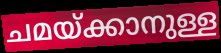
ചമയ്ക്കാനുള്ള